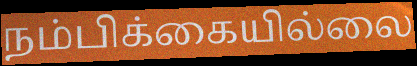
நம்பிக்கையில்லை